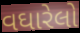
વઘારેલો